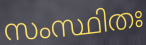
സംസ്ഥിതഃ